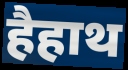
हैहाथ